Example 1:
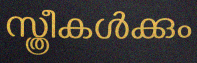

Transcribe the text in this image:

സ്ത്രീകൾക്കും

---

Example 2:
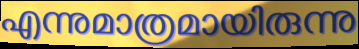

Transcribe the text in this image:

എന്നുമാത്രമായിരുന്നു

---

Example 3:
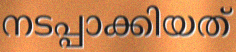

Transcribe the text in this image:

നടപ്പാക്കിയത്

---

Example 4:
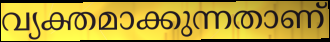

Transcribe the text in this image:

വ്യക്തമാക്കുന്നതാണ്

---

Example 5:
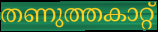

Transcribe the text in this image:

തണുത്തകാറ്റ്